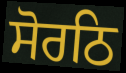
ਸੋਰਠਿ